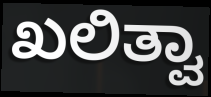
ಖಲಿತ್ವಾ